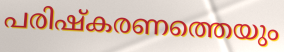
പരിഷ്കരണത്തെയും